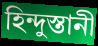
হিন্দুস্তানী